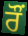
ਰੌਂ